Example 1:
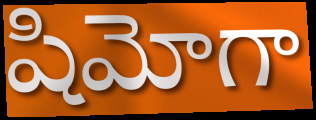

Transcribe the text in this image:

షిమోగా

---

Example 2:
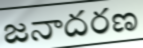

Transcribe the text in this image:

జనాదరణ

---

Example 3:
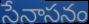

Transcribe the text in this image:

సేనాసనం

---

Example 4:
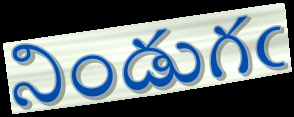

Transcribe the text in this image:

నిండుగఁ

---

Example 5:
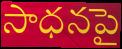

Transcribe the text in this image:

సాధనపై